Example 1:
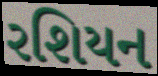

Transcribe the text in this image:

રશિયન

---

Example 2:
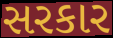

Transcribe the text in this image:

સરકાર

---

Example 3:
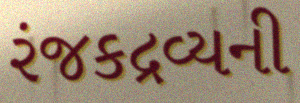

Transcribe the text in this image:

રંજકદ્રવ્યની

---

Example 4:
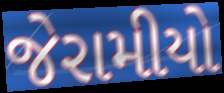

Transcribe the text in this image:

જેરામીયો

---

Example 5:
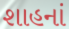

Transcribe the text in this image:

શાહનાં